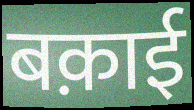
बक़ाई